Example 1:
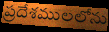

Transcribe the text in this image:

ప్రదేశములలోను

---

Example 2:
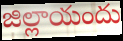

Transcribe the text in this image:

జిల్లాయందు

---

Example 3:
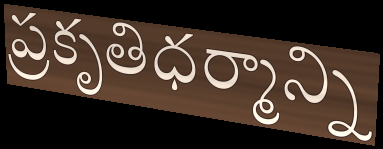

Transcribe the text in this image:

ప్రకృతిధర్మాన్ని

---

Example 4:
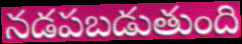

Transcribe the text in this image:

నడపబడుతుంది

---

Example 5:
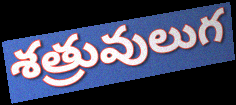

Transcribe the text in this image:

శత్రువులుగ